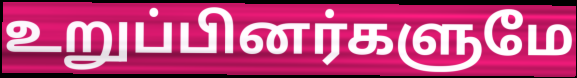
உறுப்பினர்களுமே